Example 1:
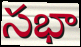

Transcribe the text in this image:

సభా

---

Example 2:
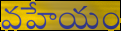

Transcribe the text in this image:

వహేయం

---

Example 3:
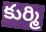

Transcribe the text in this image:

కుర్మి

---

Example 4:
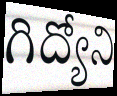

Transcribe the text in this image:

గిద్యోని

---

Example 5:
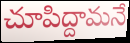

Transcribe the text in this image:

చూపిద్దామనే